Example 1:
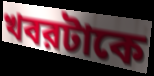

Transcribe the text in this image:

খবরটাকে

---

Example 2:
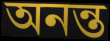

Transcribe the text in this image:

অনন্ত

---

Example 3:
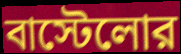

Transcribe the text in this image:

বাস্টেলোর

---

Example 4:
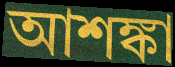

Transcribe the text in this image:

আশঙ্কা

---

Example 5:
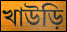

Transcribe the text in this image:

খাউড়ি